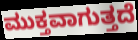
ಮುಕ್ತವಾಗುತ್ತದೆ